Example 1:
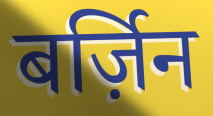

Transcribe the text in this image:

बर्ज़िन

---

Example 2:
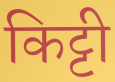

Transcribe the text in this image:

किट्टी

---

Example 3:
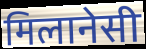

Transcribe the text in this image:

मिलानेसी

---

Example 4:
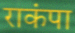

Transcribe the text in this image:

राकंपा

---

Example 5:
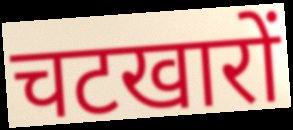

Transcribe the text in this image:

चटखारों